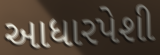
આધારપેશી